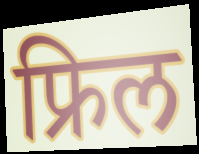
फ्रिल